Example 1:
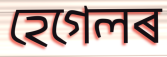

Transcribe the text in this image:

হেগেলৰ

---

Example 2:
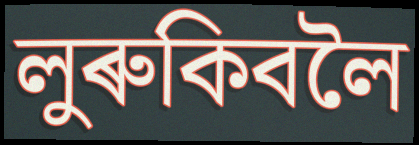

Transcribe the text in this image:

লুৰুকিবলৈ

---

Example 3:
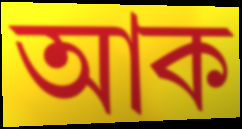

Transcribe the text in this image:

আক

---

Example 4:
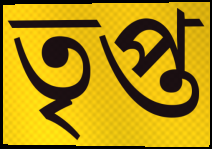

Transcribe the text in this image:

তৃপ্ত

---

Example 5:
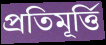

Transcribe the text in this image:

প্ৰতিমূৰ্ত্তি